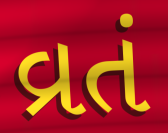
વ્રતં